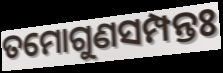
ତମୋଗୁଣସମ୍ପନ୍ତଃ